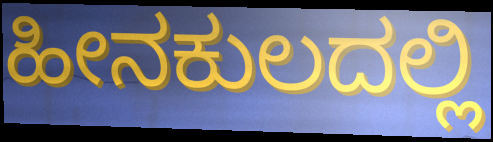
ಹೀನಕುಲದಲ್ಲಿ